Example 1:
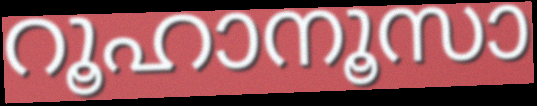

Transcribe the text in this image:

റൂഹാനൂസാ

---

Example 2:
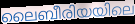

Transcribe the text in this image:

ലൈബീരിയയിലെ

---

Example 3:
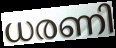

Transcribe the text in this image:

ധരണി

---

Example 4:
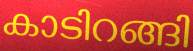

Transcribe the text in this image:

കാടിറങ്ങി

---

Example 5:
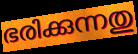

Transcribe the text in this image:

ഭരിക്കുന്നതു